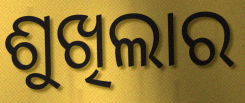
ଶୁଖିଲାର